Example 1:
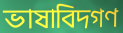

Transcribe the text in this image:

ভাষাবিদগণ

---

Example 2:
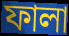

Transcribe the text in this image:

ফালা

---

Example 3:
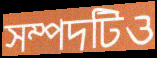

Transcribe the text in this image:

সম্পদটিও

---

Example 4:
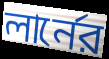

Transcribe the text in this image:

লার্নের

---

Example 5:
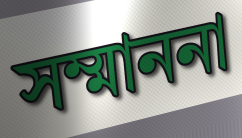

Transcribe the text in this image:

সম্মাননা